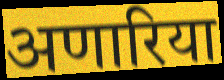
अणारिया